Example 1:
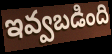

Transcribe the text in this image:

ఇవ్వబడింది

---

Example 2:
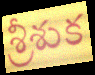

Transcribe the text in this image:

శ్రీశుక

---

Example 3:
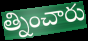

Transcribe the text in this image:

త్నించారు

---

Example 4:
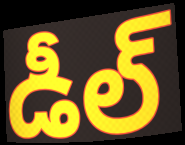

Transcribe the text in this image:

డీల్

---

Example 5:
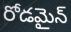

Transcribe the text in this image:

రోడమైన్